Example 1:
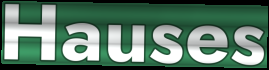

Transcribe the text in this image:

Hauses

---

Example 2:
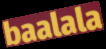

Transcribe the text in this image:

baalala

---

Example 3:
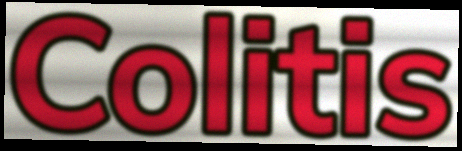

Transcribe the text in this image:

Colitis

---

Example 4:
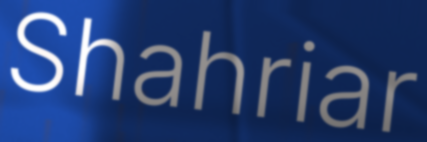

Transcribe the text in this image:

Shahriar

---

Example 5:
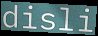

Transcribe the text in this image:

disli